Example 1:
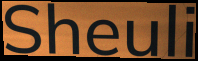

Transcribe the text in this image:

Sheuli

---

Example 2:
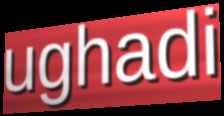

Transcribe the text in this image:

ughadi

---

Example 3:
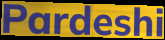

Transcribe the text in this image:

Pardeshi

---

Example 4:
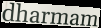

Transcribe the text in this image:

dharmam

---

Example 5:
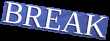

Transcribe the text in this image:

BREAK